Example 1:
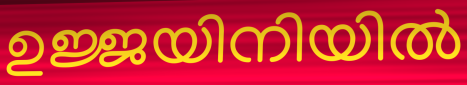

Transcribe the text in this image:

ഉജ്ജയിനിയിൽ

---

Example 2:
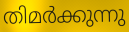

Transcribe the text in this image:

തിമർക്കുന്നു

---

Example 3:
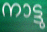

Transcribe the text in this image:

നാട്ടു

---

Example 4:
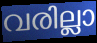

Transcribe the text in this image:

വരില്ലാ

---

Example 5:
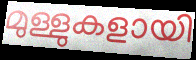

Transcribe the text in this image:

മുള്ളുകളായി